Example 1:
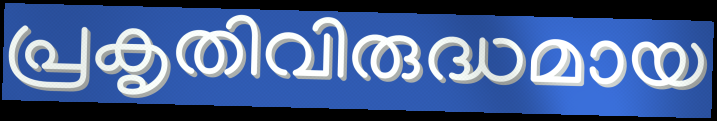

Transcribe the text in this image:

പ്രകൃതിവിരുദ്ധമായ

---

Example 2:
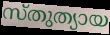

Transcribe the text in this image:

സ്തുത്യായ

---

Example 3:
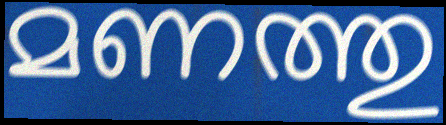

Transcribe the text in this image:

മണത്തു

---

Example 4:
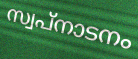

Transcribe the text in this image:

സ്വപ്നാടനം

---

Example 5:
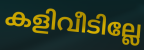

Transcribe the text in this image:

കളിവീടില്ലേ